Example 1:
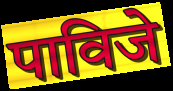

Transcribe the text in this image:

पाविजे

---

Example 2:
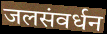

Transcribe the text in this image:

जलसंवर्धन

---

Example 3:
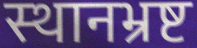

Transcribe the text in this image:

स्थानभ्रष्ट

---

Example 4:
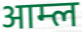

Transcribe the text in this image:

आम्ल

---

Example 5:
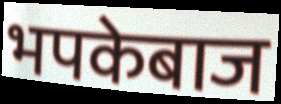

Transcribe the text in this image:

भपकेबाज